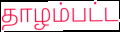
தாழம்பட்ட